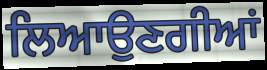
ਲਿਆਉਣਗੀਆਂ